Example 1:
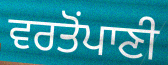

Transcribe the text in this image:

ਵਰਤੋਂਪਾਣੀ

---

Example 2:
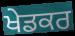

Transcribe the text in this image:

ਖੇਡਕਰ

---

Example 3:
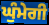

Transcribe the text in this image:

ਘੁੰਮੇਗੀ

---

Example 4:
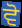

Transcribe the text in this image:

ਵੋ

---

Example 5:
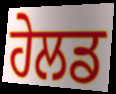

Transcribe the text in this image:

ਹੇਲਡ